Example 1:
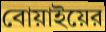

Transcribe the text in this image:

বোয়াইয়ের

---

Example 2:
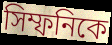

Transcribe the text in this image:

সিম্ফনিকে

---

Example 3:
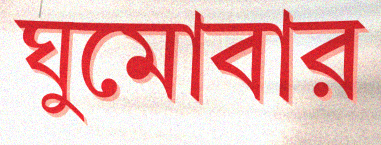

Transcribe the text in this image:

ঘুমোবার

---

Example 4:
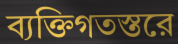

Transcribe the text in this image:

ব্যক্তিগতস্তরে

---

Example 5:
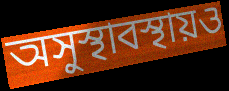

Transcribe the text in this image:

অসুস্থাবস্থায়ও